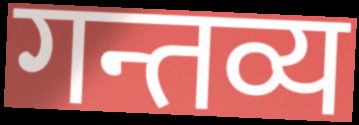
गन्तव्य